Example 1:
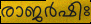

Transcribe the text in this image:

രാജർഷിഃ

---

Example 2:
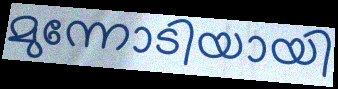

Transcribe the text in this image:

മുന്നോടിയായി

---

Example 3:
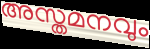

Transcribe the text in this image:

അസ്തമനവും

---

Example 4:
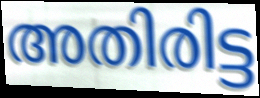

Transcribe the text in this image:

അതിരിട്ട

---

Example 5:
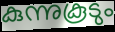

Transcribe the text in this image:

കുന്നുകൂടും